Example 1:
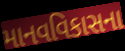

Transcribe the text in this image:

માનવવિકાસના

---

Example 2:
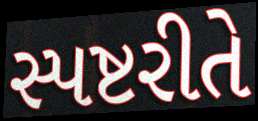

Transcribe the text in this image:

સ્પષ્ટરીતે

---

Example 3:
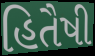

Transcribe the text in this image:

હિતૈષી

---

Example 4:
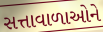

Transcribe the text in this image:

સત્તાવાળાઓને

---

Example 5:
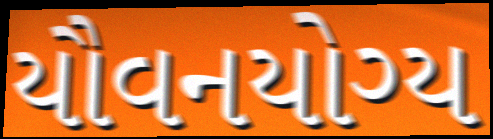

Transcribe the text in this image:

યૌવનયોગ્ય